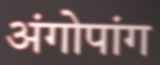
अंगोपांग